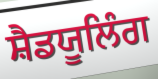
ਸ਼ੈਡਯੂਲਿੰਗ